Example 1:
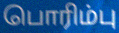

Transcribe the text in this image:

பொரிம்பு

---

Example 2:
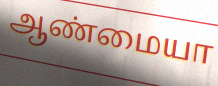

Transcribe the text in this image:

ஆண்மையா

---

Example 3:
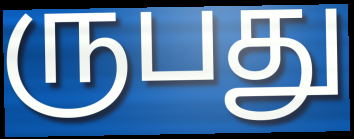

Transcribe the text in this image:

ருபது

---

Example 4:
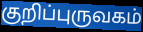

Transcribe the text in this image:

குறிப்புருவகம்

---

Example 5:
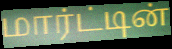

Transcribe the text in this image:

மார்ட்டின்